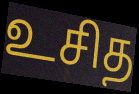
உசித